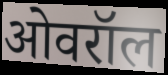
ओवरॉल